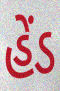
હેંડ